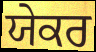
ਯੇਕਰ